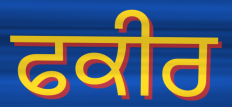
ਫਕੀਰ